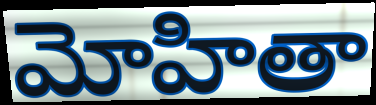
మోహితా